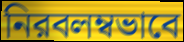
নিরবলম্বভাবে